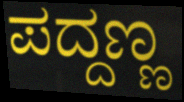
ಪದ್ದಣ್ಣ